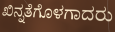
ಖಿನ್ನತೆಗೊಳಗಾದರು